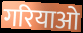
गरियाओ